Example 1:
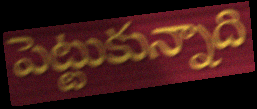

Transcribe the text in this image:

పెట్టుకున్నాది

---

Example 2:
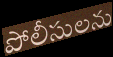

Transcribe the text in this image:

పోలీసులను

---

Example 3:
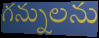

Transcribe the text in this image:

గన్నులను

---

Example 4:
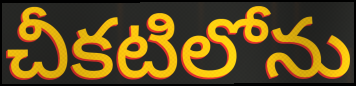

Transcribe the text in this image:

చీకటిలోను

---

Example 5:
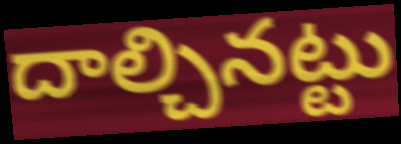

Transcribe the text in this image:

దాల్చినట్టు